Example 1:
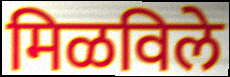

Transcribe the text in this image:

मिळविले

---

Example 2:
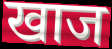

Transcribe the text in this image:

खाज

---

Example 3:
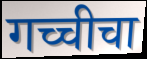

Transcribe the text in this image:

गच्चीचा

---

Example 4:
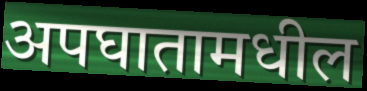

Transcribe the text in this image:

अपघातामधील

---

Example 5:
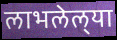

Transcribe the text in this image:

लाभलेल्या